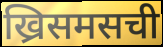
ख्रिसमसची